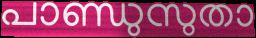
പാണ്ഡുസുതാ